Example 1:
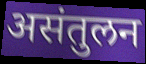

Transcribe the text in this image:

असंतुलन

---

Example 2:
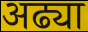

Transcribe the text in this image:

अढ्या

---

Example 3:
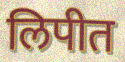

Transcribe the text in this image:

लिपीत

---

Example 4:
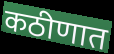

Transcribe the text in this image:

कठीणात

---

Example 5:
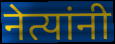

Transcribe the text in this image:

नेत्यांनी